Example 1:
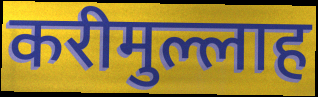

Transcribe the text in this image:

करीमुल्लाह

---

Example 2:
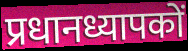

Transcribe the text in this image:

प्रधानध्यापकों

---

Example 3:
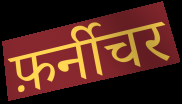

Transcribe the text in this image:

फ़र्नीचर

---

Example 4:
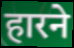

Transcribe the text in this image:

हारने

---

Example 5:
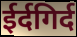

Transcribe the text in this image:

ईर्दगिर्द